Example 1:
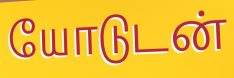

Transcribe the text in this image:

யோடுடன்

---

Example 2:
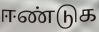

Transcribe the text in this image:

ஈண்டுக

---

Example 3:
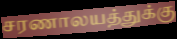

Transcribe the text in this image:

சரணாலயத்துக்கு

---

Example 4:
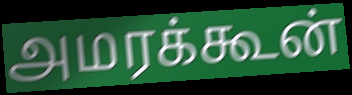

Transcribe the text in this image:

அமரக்கூன்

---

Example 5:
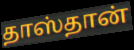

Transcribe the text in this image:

தாஸ்தான்